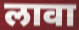
लावा